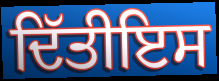
ਦਿੱਤੀਇਸ